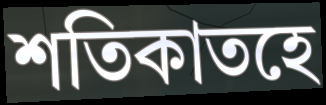
শতিকাতহে